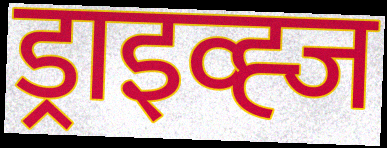
ड्राइव्ह्ज